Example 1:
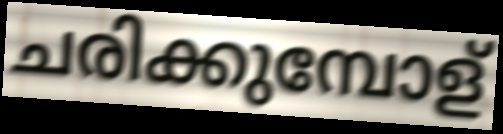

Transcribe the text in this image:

ചരിക്കുമ്പോള്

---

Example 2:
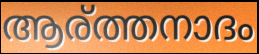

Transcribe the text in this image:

ആര്ത്തനാദം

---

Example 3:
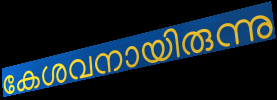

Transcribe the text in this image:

കേശവനായിരുന്നു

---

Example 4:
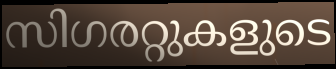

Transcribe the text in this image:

സിഗരറ്റുകളുടെ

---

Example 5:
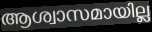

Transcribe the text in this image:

ആശ്വാസമായില്ല